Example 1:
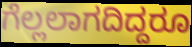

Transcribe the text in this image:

ಗೆಲ್ಲಲಾಗದಿದ್ದರೂ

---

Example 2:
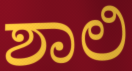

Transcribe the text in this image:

ಶಾಲಿ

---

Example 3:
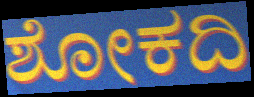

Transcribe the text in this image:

ಶೋಕದಿ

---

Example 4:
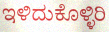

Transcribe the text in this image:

ಇಳಿದುಕೊಳ್ಳಿರಿ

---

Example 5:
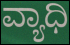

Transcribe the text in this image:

ವ್ಯಾಧಿ